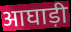
आघाड़ी